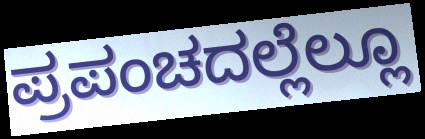
ಪ್ರಪಂಚದಲ್ಲೆಲ್ಲೂ